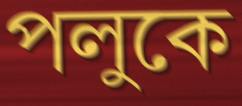
পলুকে